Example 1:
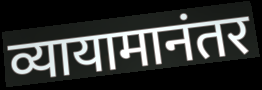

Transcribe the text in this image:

व्यायामानंतर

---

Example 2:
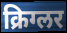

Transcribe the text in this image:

क्रिग्लर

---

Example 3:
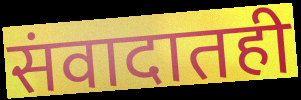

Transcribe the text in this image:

संवादातही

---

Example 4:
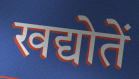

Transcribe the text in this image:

खद्योतें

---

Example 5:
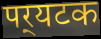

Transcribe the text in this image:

पर्यटक